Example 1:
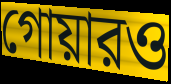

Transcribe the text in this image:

গোয়ারও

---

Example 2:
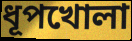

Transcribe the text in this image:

ধূপখোলা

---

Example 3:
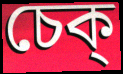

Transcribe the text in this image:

চেক্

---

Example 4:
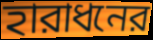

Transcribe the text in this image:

হারাধনের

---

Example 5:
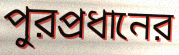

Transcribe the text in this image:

পুরপ্রধানের